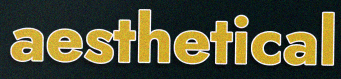
aesthetical